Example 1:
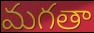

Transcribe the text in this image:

మగతా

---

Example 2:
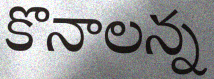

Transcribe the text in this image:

కొనాలన్న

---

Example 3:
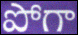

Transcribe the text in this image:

పోగా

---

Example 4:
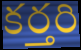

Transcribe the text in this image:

కర్తరి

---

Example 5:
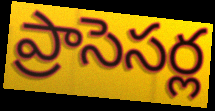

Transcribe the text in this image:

ప్రాసెసర్ల